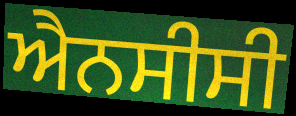
ਐਨਸੀਸੀ